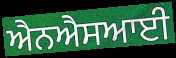
ਐਨਐਸਆਈ